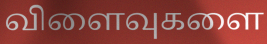
விளைவுகளை